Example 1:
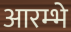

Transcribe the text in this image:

आरम्भे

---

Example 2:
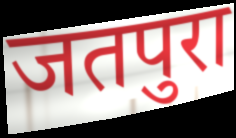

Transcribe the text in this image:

जतपुरा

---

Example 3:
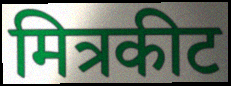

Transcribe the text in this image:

मित्रकीट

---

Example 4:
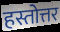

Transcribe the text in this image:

हस्तोत्तर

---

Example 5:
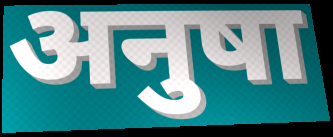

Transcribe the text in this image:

अनुषा